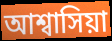
আশ্বাসিয়া